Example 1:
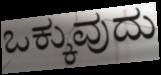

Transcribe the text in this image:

ಒಕ್ಕುವುದು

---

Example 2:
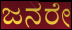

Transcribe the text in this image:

ಜನರೇ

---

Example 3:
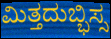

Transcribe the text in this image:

ಮಿತ್ತದುಬ್ಭಿಸ್ಸ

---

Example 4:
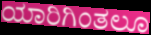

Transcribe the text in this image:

ಯಾರಿಗಿಂತಲೂ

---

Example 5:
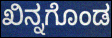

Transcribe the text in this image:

ಖಿನ್ನಗೊಂಡ